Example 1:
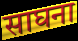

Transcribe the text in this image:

साघना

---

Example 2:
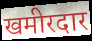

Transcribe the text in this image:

खमीरदार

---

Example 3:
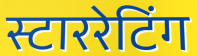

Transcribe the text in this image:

स्टाररेटिंग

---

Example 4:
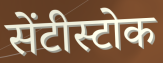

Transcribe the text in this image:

सेंटीस्टोक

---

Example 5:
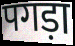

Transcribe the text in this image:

पगड़ा